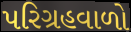
પરિગ્રહવાળો